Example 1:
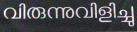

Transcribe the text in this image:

വിരുന്നുവിളിച്ചു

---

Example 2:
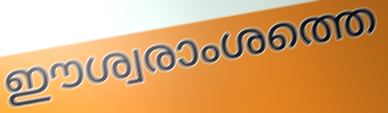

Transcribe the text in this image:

ഈശ്വരാംശത്തെ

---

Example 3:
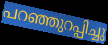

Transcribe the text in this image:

പറഞ്ഞുറപ്പിച്ചു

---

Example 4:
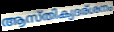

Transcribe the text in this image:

ആസ്തിക്യദര്ശനം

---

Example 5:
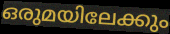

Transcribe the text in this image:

ഒരുമയിലേക്കും